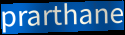
prarthane